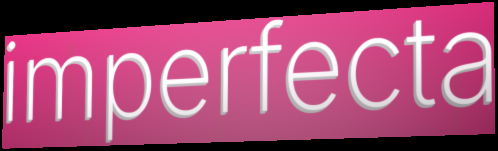
imperfecta